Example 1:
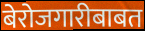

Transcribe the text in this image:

बेरोजगारीबाबत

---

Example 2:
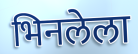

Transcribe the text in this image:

भिनलेला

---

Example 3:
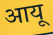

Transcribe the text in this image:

आयू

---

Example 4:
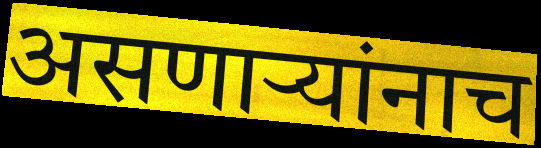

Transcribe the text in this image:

असणार्‍यांनाच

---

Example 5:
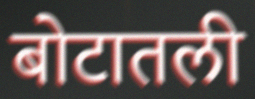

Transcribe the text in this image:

बोटातली